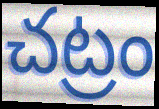
చట్రం